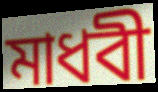
মাধবী